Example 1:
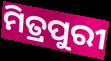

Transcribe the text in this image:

ମିତ୍ରପୁରୀ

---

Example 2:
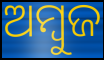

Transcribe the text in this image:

ଅମ୍ୱୁଜ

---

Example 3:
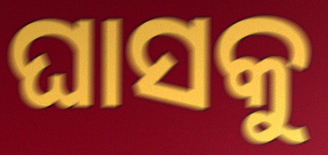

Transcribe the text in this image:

ଘାସକୁ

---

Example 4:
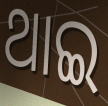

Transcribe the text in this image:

ଥାଇ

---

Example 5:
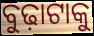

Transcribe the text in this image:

ବୁଢ଼ାଟାକୁ